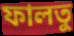
ফালতু